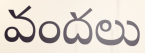
వందలు